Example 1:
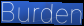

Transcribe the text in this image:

Burden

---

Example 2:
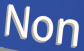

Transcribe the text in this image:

Non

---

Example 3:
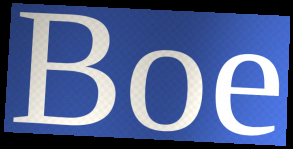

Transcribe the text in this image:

Boe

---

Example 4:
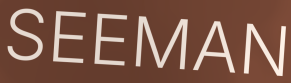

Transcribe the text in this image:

SEEMAN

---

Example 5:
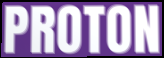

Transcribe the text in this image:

PROTON